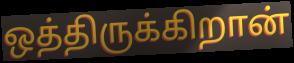
ஒத்திருக்கிறான்